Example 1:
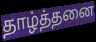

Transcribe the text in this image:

தாழ்த்தனை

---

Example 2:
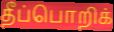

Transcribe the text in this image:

தீப்பொறிக்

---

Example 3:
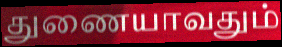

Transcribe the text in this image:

துணையாவதும்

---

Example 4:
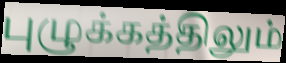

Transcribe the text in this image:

புழுக்கத்திலும்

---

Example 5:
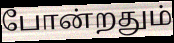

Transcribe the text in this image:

போன்றதும்